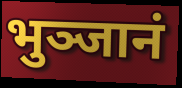
भुञ्जानं